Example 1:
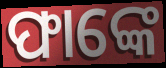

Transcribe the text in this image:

ଫାଙ୍କେ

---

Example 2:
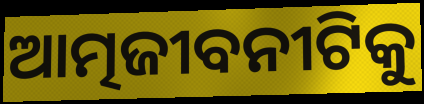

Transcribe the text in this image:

ଆତ୍ମଜୀବନୀଟିକୁ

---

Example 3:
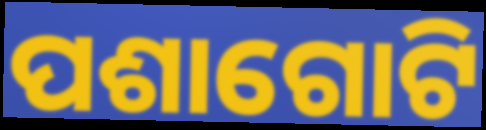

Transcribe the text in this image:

ପଶାଗୋଟି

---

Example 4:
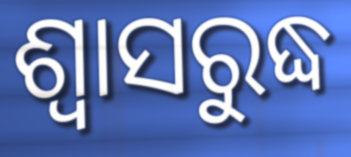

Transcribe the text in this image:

ଶ୍ବାସରୁଦ୍ଧ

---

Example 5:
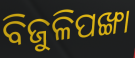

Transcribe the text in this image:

ବିଜୁଳିପଙ୍ଖା